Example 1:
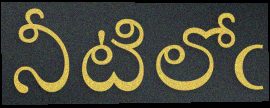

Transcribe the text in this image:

నీటిలోఁ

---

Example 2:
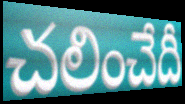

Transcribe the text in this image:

చలించేదీ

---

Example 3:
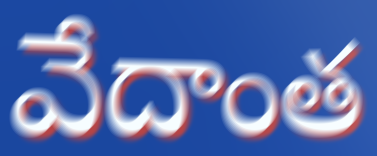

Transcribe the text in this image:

వేదాంత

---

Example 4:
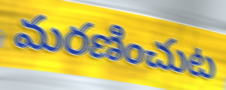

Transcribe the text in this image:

మరణించుట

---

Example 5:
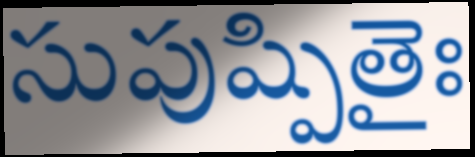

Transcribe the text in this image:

సుపుష్పితైః